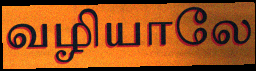
வழியாலே